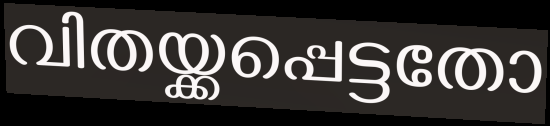
വിതയ്ക്കപ്പെട്ടതോ